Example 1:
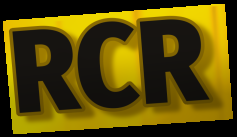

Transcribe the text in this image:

RCR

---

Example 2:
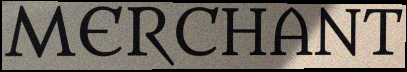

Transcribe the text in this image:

MERCHANT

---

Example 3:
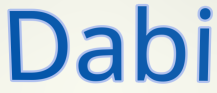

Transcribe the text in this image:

Dabi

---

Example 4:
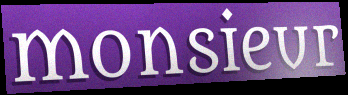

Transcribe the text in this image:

monsieur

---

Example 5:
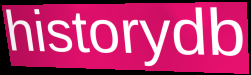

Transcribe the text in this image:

historydb